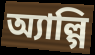
অ্যাল্গি